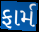
ફાર્મ